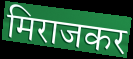
मिराजकर